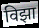
विझा